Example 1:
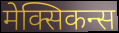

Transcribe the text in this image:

मेक्सिकन्स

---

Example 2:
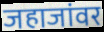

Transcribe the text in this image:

जहाजांवर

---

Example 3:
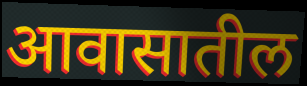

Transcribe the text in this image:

आवासातील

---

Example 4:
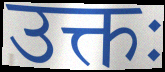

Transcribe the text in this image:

उक्तः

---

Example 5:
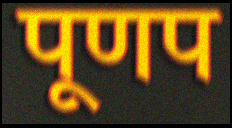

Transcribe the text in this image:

पूणप